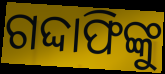
ଗଦ୍ଦାଫିଙ୍କୁ